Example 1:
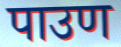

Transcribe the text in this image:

पाउण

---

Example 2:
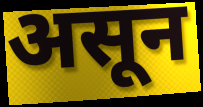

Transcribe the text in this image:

असून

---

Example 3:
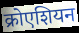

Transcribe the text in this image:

क्रोएशियन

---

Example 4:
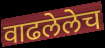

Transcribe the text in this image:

वाढलेलेच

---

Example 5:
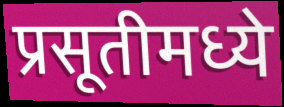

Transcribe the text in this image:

प्रसूतीमध्ये